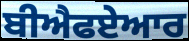
ਬੀਐਫਏਆਰ